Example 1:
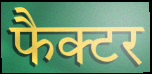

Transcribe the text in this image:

फैक्टर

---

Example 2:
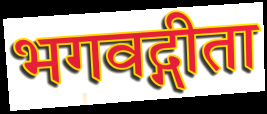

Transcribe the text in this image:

भगवद्गीता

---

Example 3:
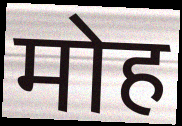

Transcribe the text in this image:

मोह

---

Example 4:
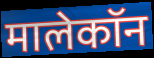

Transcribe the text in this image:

मालेकॉन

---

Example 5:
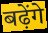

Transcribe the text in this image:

बढ़ेंगे